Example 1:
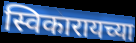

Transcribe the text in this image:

स्विकारायच्या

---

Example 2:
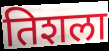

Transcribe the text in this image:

तिशला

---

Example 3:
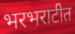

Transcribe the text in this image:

भरभराटीत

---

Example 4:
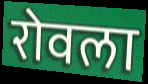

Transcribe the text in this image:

रोवला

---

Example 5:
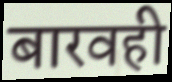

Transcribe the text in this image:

बारवही